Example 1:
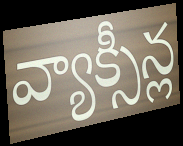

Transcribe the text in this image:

వ్యాక్సీన్ల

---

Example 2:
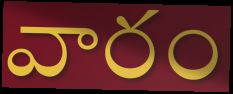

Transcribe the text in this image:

వారం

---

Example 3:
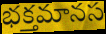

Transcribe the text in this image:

భక్తమానస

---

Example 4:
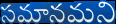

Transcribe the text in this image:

సమానమని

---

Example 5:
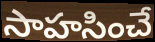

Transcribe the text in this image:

సాహసించే